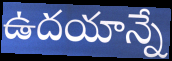
ఉదయాన్నే